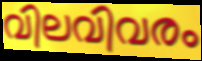
വിലവിവരം